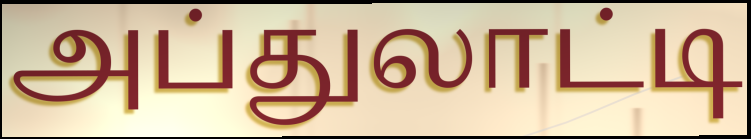
அப்துலாட்டி